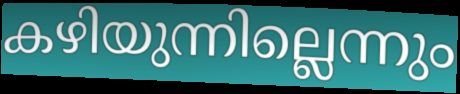
കഴിയുന്നില്ലെന്നും